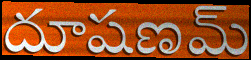
దూషణమ్